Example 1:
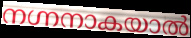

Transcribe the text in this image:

നഗ്നനാകയാൽ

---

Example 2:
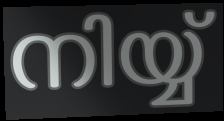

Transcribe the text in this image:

നിയ്യ്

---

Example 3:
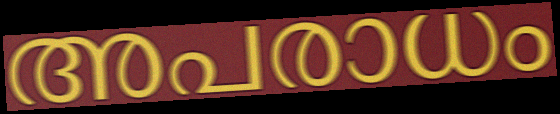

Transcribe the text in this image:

അപരാധം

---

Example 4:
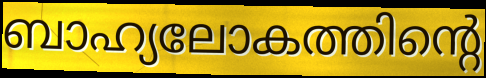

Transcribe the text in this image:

ബാഹ്യലോകത്തിന്റെ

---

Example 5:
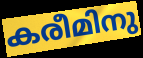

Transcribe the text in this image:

കരീമിനു